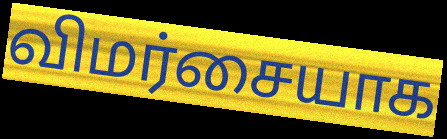
விமர்சையாக